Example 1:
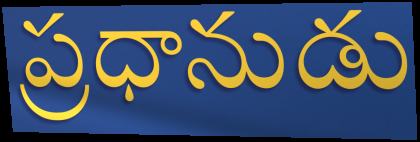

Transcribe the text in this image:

ప్రధానుడు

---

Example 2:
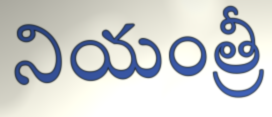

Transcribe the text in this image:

నియంత్రీ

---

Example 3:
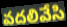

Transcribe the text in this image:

వదలివేసి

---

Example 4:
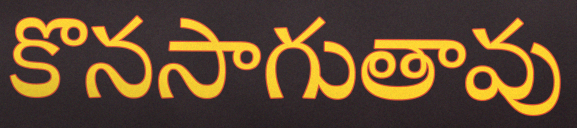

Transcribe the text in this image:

కొనసాగుతావు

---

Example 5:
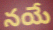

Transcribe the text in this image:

నయే